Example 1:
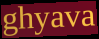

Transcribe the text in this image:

ghyava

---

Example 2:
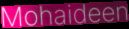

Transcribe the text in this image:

Mohaideen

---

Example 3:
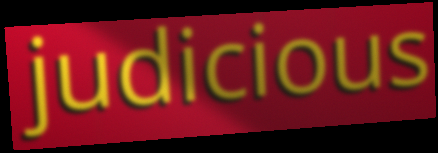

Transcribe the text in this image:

judicious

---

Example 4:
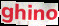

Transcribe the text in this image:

ghino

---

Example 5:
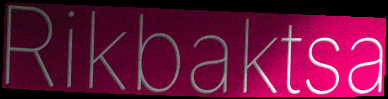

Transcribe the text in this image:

Rikbaktsa